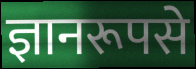
ज्ञानरूपसे